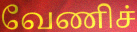
வேணிச்